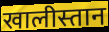
खालीस्तान